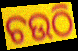
ଚଉଠି